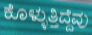
ಕೊಳ್ಳುತ್ತಿದ್ದೆವು